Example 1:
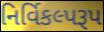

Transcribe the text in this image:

નિર્વિકલ્પરૂપ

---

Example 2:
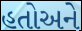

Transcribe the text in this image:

હતોઅને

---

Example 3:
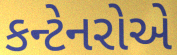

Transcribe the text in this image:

કન્ટેનરોએ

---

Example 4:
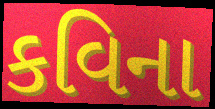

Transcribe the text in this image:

કવિના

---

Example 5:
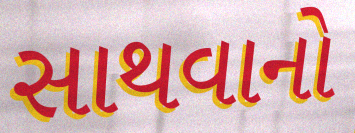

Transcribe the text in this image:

સાથવાનો